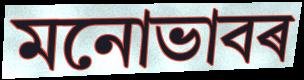
মনোভাবৰ